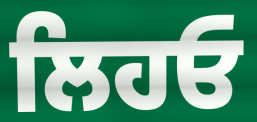
ਲਿਹਓ